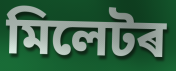
মিলেটৰ